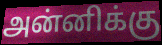
அன்னிக்கு